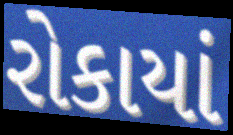
રોકાયાં